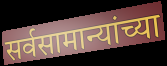
सर्वसामान्यांच्या